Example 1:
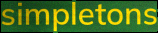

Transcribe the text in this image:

simpletons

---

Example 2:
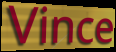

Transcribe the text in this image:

Vince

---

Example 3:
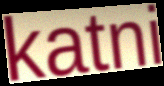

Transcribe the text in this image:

katni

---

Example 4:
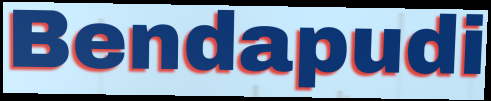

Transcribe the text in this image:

Bendapudi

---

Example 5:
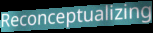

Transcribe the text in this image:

Reconceptualizing